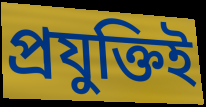
প্রযুক্তিই